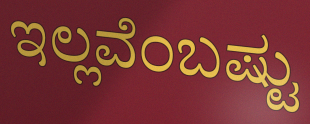
ಇಲ್ಲವೆಂಬಷ್ಟು